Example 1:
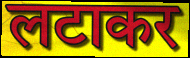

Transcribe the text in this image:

लटाकर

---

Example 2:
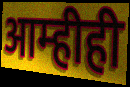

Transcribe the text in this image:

आम्हीही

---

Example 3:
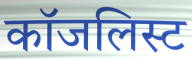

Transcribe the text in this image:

कॉजलिस्ट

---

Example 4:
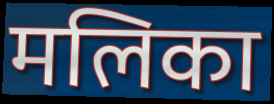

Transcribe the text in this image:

मलिका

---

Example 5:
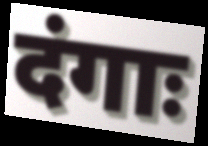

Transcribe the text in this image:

दंगाः